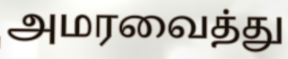
அமரவைத்து